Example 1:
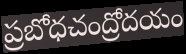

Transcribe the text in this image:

ప్రబోధచంద్రోదయం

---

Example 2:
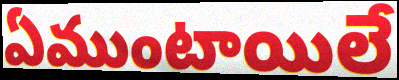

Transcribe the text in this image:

ఏముంటాయిలే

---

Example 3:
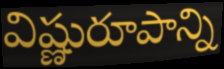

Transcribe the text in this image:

విష్ణురూపాన్ని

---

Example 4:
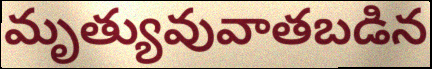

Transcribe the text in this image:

మృత్యువువాతబడిన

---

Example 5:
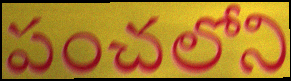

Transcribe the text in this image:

పంచలోని